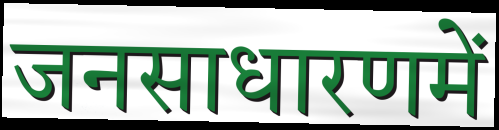
जनसाधारणमें